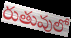
రుతువులో